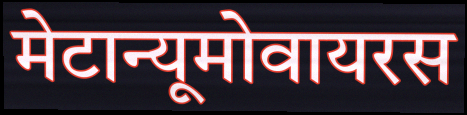
मेटान्यूमोवायरस